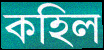
কহিল